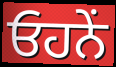
ਓਹਨੇੰ